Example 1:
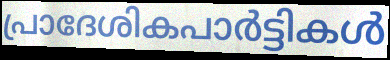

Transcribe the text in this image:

പ്രാദേശികപാർട്ടികൾ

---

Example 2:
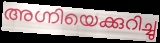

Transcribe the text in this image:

അഗ്നിയെക്കുറിച്ചു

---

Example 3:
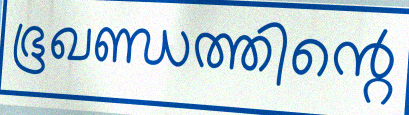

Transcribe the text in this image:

ഭൂഖണ്ഡത്തിന്റെ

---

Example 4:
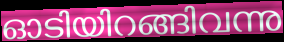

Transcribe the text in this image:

ഓടിയിറങ്ങിവന്നു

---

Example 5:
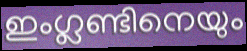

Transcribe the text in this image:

ഇംഗ്ലണ്ടിനെയും